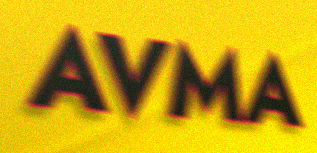
AVMA